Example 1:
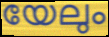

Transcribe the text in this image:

യേലും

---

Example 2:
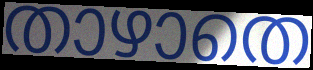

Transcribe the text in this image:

താഴാതെ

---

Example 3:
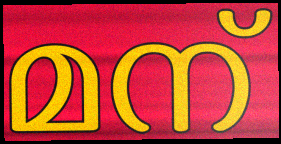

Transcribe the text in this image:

മന്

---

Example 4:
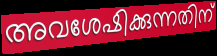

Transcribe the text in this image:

അവശേഷിക്കുന്നതിന്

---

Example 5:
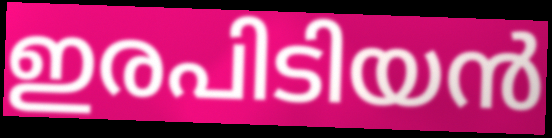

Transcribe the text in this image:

ഇരപിടിയൻ